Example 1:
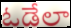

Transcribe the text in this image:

ఓడేలా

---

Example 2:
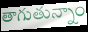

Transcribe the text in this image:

తాగుతున్నాం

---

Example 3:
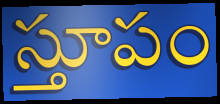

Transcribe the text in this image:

స్తూపం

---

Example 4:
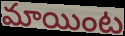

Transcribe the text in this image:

మాయింట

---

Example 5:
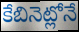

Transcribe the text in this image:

కేబినెట్లోనే